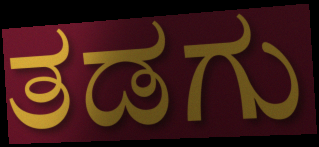
ತಡಗು